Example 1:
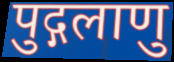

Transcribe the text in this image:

पुद्गलाणु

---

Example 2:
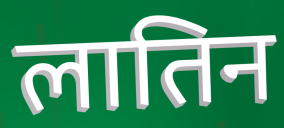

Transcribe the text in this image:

लातिन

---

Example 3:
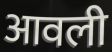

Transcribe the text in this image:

आवली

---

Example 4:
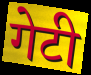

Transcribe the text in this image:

गेटी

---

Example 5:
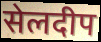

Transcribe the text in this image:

सेलदीप